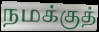
நமக்குத்